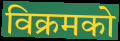
विक्रमको